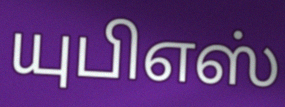
யுபிஎஸ்